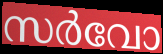
സർവോ